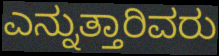
ಎನ್ನುತ್ತಾರಿವರು